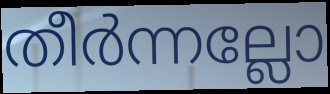
തീർന്നല്ലോ